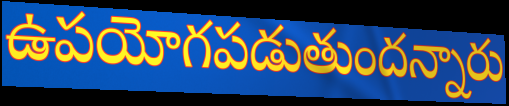
ఉపయోగపడుతుందన్నారు